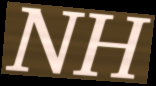
NH